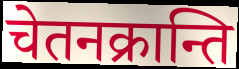
चेतनक्रान्ति